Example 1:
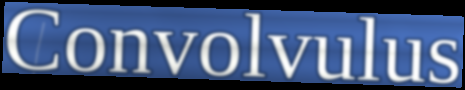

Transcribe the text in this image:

Convolvulus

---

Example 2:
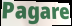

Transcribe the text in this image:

Pagare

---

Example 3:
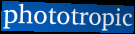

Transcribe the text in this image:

phototropic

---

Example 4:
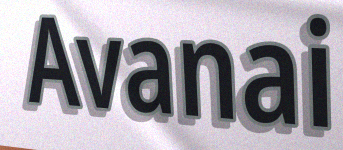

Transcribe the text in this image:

Avanai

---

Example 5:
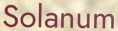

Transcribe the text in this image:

Solanum